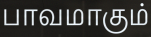
பாவமாகும்